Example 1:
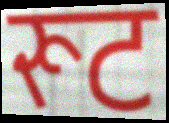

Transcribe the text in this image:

रूट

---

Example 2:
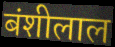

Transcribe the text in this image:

बंशीलाल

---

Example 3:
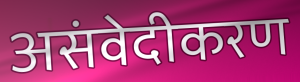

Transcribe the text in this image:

असंवेदीकरण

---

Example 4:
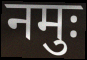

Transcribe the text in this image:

नमुः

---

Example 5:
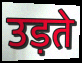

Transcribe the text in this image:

उड़ते